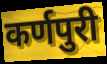
कर्णपुरी